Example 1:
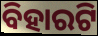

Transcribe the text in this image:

ବିହାରଟି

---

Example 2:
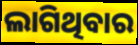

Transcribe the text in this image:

ଲାଗିଥିବାର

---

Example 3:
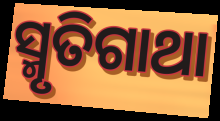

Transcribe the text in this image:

ସ୍ମୃତିଗାଥା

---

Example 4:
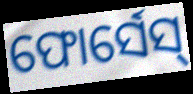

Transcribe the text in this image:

ଫୋର୍ସେସ୍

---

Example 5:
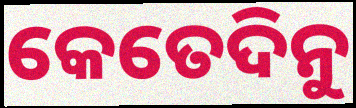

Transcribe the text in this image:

କେତେଦିନୁ